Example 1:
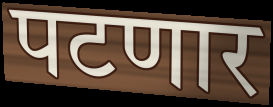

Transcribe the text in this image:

पटणार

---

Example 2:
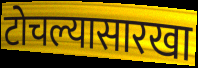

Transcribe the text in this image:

टोचल्यासारखा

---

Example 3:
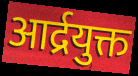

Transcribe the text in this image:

आर्द्रयुक्त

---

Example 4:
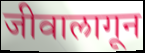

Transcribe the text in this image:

जीवालागून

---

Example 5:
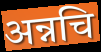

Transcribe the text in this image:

अन्नचि